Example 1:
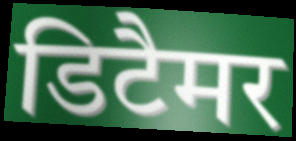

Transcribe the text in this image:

डिटैमर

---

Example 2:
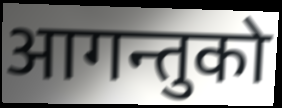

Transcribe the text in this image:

आगन्तुको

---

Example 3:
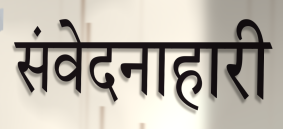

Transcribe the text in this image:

संवेदनाहारी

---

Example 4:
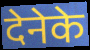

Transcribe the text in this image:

देनेके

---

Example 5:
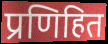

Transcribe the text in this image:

प्रणिहित